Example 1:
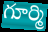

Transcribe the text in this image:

గూర్మి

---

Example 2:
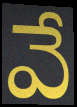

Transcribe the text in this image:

వే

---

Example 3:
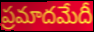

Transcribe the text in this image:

ప్రమాదమేదీ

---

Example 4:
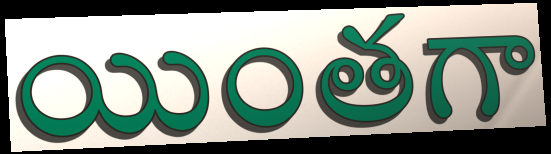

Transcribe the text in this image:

యింతగా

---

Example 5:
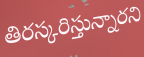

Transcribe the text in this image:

తిరస్కరిస్తున్నారని